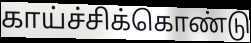
காய்ச்சிக்கொண்டு